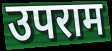
उपराम